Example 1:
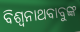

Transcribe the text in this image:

ବିଶ୍ୱନାଥବାବୁଙ୍କ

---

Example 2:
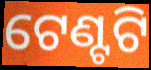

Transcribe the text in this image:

ଟେଣ୍ଟଟି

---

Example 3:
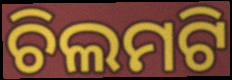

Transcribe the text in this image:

ଚିଲମଟି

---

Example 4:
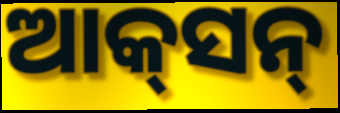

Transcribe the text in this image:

ଆକ୍‍ସନ୍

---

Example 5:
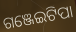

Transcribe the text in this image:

ଗଞ୍ଜେଇଟିପା